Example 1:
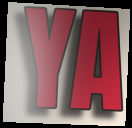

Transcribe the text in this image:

YA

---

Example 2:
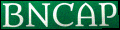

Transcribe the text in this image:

BNCAP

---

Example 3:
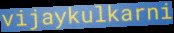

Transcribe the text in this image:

vijaykulkarni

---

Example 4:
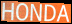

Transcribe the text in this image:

HONDA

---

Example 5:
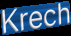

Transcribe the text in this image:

Krech